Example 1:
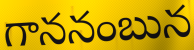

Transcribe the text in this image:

గాననంబున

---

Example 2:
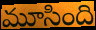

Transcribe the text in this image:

మూసింది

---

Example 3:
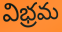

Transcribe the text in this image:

విభ్రమ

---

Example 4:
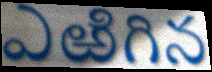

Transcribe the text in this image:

ఎఱిగిన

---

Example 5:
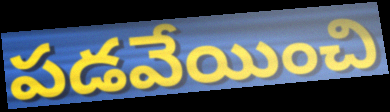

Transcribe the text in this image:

పడవేయించి